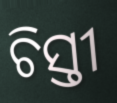
ଚିସ୍ତୀ